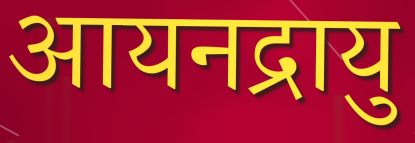
आयनद्रायु